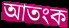
আতংক